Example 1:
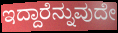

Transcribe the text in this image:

ಇದ್ದಾರೆನ್ನುವುದೇ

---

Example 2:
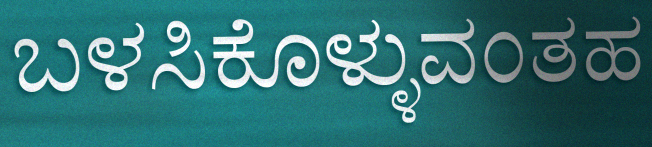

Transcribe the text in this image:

ಬಳಸಿಕೊಳ್ಳುವಂತಹ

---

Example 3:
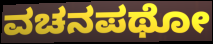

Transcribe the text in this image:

ವಚನಪಥೋ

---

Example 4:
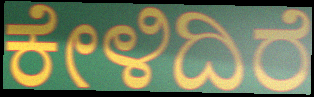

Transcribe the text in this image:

ಕೇಳಿದಿರೆ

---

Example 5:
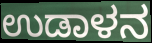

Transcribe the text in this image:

ಉಡಾಳನ